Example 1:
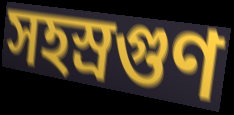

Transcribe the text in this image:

সহস্রগুণ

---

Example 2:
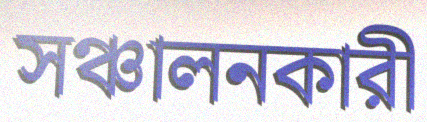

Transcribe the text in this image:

সঞ্চালনকারী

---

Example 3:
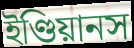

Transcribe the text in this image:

ইণ্ডিয়ানস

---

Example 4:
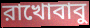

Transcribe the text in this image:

রাখোবাবু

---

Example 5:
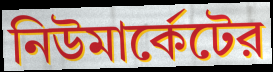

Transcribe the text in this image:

নিউমার্কেটের